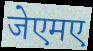
जेएमए